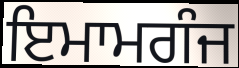
ਇਮਾਮਗੰਜ